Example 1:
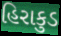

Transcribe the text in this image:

હિરાકુડ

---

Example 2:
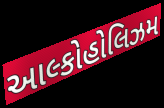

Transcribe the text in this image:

આલ્કોહોલિઝમ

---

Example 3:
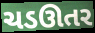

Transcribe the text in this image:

ચડઊતર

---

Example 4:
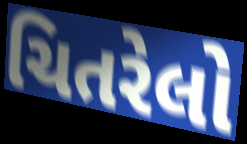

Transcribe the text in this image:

ચિતરેલો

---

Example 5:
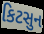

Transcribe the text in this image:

કિટસુન